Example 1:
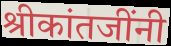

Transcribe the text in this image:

श्रीकांतजींनी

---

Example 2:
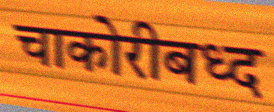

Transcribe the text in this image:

चाकोरीबध्द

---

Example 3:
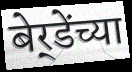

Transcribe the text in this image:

बेर्डेंच्या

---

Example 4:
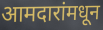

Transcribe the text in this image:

आमदारांमधून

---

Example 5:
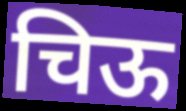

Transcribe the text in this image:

चिऊ